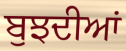
ਬੁਝਦੀਆਂ